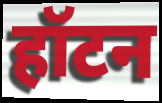
हॉटन